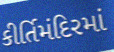
કીર્તિમંદિરમાં